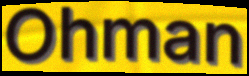
Ohman